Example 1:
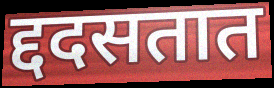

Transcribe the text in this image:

द्ददसतात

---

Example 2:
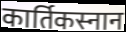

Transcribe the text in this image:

कार्तिकस्नान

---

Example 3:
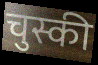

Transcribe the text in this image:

चुस्की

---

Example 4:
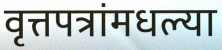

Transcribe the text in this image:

वृत्तपत्रांमधल्या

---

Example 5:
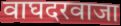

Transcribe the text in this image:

वाघदरवाजा